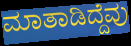
ಮಾತಾಡಿದ್ದೆವು